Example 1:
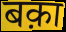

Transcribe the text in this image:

बक़ा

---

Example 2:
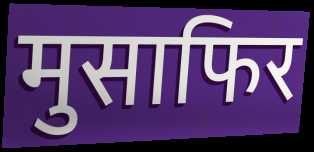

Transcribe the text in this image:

मुसाफिर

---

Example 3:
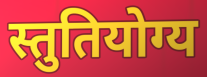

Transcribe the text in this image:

स्तुतियोग्य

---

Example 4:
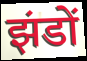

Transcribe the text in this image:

झंडों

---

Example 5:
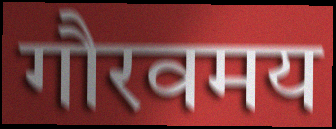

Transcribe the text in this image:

गौरवमय